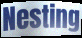
Nesting